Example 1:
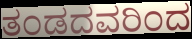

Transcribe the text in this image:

ತಂಡದವರಿಂದ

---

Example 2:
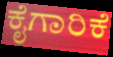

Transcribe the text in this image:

ಕೈಗಾರಿಕೆ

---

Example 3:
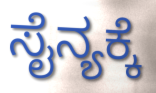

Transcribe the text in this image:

ಸೈನ್ಯಕ್ಕೆ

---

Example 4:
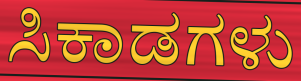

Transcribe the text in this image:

ಸಿಕಾಡಗಳು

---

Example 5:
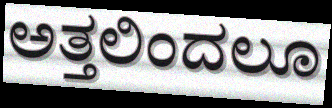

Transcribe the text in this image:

ಅತ್ತಲಿಂದಲೂ